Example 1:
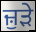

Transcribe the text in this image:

ਜ਼ੁੜੇ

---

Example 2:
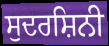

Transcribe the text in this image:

ਸੁਦਰਸ਼ਿਨੀ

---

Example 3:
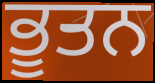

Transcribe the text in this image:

ਭੂਤਨ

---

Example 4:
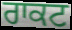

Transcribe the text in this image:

ਰਾਕਟ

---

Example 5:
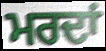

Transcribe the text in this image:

ਮਰਦਾਂ